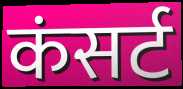
कंसर्ट